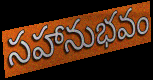
సహానుభవం